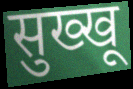
सुख्खू